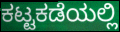
ಕಟ್ಟಕಡೆಯಲ್ಲಿ